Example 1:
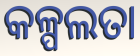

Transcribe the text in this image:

କଳ୍ପଲତା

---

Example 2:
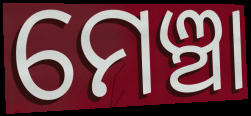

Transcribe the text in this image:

ମେଞ୍ଚା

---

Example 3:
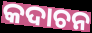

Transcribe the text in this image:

କଦାଚନ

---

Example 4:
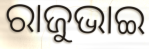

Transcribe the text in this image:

ରାଜୁଭାଇ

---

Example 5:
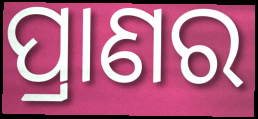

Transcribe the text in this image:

ପ୍ରାଣର